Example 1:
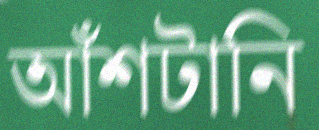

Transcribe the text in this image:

আঁশটানি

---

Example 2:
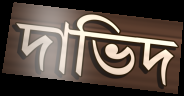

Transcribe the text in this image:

দাভিদ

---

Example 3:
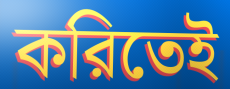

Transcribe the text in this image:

করিতেই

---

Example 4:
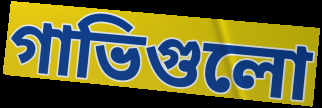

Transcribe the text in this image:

গাভিগুলো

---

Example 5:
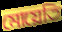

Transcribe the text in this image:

মোয়েতি